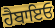
ਹੈਬਾਇਓ